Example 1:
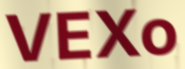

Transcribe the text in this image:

VEXo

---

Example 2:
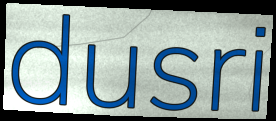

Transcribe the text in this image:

dusri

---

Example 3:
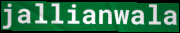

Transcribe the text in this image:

jallianwala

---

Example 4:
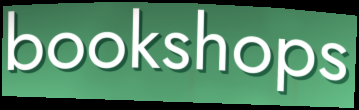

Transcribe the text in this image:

bookshops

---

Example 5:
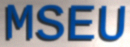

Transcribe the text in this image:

MSEU